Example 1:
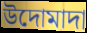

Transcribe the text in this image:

উদোমাদা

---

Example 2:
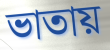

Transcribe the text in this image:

ভাতায়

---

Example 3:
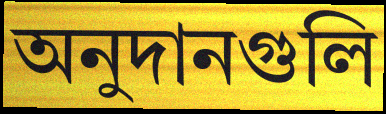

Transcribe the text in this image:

অনুদানগুলি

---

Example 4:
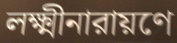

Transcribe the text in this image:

লক্ষ্মীনারায়ণে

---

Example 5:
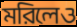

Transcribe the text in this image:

মরিলেও